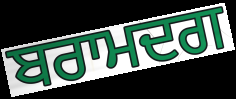
ਬਰਾਮਦਗ